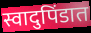
स्वादुपिंडात